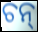
ଚନ୍